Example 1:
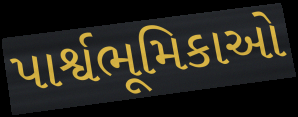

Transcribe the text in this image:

પાર્શ્વભૂમિકાઓ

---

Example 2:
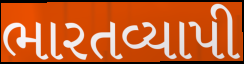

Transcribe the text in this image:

ભારતવ્યાપી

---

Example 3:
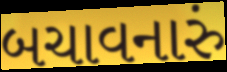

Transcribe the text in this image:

બચાવનારું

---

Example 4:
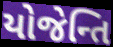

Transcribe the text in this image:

યોજેન્તિ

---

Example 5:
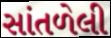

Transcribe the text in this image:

સાંતળેલી